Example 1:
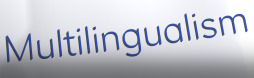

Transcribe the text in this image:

Multilingualism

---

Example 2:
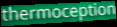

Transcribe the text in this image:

thermoception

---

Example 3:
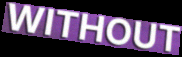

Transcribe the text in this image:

WITHOUT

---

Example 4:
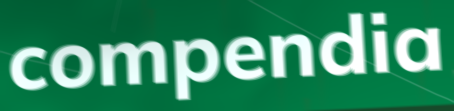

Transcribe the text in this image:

compendia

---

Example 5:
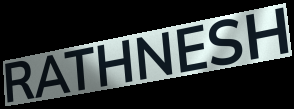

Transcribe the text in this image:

RATHNESH